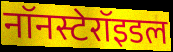
नॉनस्टेरॉइडल